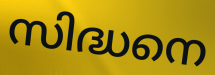
സിദ്ധനെ